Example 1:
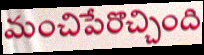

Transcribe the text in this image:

మంచిపేరొచ్చింది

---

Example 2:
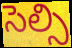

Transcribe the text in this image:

సెల్సి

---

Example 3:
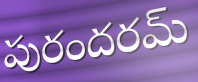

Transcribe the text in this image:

పురందరమ్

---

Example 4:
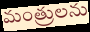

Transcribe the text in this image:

మంత్రులను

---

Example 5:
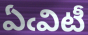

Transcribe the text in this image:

ఏఁవిటీ